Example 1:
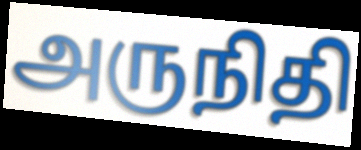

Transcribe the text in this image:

அருநிதி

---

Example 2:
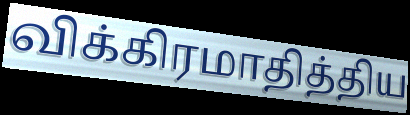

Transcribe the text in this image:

விக்கிரமாதித்திய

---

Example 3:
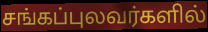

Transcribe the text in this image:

சங்கப்புலவர்களில்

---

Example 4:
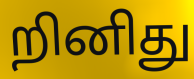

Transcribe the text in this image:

றினிது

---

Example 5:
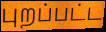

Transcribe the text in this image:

புறப்பட்ட